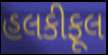
હલકીફૂલ